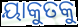
ୟାକୁତକୁ